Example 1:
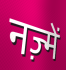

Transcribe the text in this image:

नज़्में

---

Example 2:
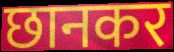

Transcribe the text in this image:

छानकर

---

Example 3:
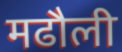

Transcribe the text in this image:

मढौली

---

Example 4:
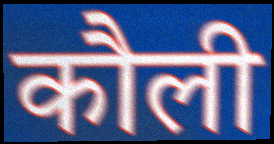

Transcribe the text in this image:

कौली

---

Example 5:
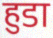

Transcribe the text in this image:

हुडा